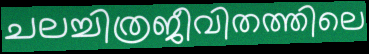
ചലച്ചിത്രജീവിതത്തിലെ